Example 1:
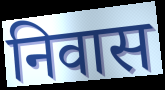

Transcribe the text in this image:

निवास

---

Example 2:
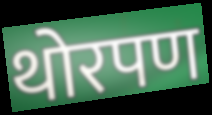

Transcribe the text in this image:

थोरपण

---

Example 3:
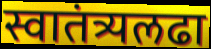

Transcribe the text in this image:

स्वातंत्र्यलढा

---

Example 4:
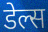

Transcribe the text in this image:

डेल्स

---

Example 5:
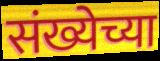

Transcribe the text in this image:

संख्येच्या